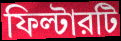
ফিল্টারটি